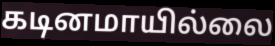
கடினமாயில்லை